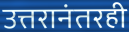
उत्तरानंतरही